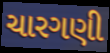
ચારગણી